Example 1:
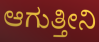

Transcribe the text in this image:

ಆಗುತ್ತೀನಿ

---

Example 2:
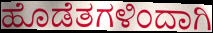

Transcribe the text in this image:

ಹೊಡೆತಗಳಿಂದಾಗಿ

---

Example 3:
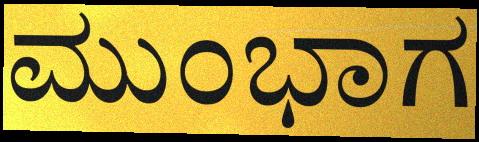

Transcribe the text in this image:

ಮುಂಭಾಗ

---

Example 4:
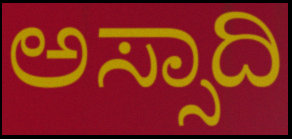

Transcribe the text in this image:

ಅಸ್ಸಾದಿ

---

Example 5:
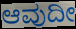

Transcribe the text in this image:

ಆವುದೀ